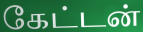
கேட்டன்